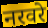
नरवरे